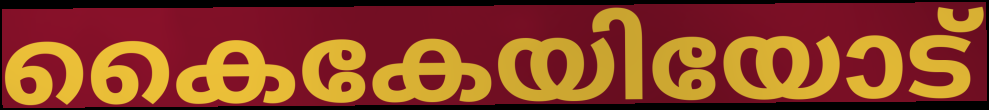
കൈകേയിയോട്